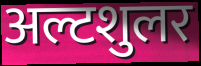
अल्टशुलर